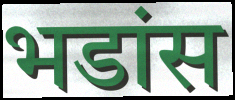
भडांस